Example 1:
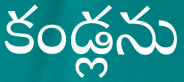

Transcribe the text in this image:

కండ్లను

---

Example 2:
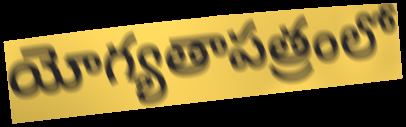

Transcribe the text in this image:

యోగ్యతాపత్రంలో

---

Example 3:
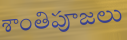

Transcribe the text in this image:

శాంతిపూజలు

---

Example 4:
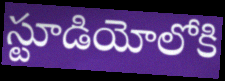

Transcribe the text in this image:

స్టూడియోలోకి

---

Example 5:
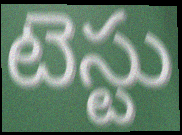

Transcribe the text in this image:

టెస్టు